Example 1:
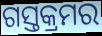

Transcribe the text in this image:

ଗସ୍ତକ୍ରମର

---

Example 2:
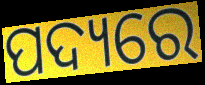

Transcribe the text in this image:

ପଦ୍ୟରେ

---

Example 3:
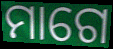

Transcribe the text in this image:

ମାଗେ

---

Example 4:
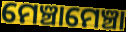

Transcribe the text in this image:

ମେଞ୍ଚାମେଞ୍ଚା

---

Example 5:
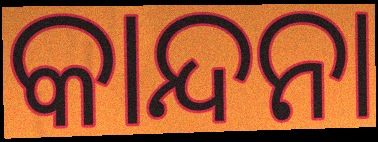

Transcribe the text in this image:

କାନ୍ଦନା